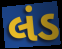
લંડ